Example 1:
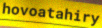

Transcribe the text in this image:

hovoatahiry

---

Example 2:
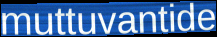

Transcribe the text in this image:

muttuvantide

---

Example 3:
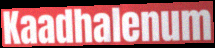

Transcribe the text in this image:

Kaadhalenum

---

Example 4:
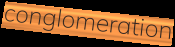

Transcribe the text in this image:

conglomeration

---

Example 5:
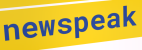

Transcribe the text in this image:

newspeak